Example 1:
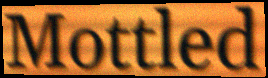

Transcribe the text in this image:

Mottled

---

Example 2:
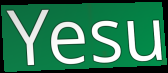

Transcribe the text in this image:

Yesu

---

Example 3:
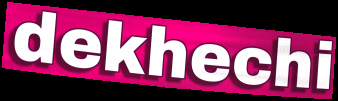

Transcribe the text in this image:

dekhechi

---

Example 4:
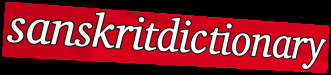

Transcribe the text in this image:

sanskritdictionary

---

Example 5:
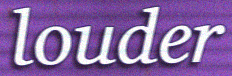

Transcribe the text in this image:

louder